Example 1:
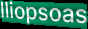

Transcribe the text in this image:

Iliopsoas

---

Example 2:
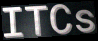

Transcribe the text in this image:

ITCs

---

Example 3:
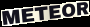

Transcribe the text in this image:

METEOR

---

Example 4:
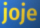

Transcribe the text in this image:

joje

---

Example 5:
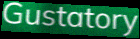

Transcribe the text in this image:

Gustatory